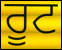
ਰੂਟ